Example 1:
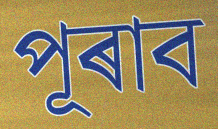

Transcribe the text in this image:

পূৰাব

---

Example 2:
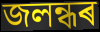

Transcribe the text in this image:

জলন্ধৰ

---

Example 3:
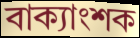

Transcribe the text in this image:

বাক্যাংশক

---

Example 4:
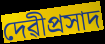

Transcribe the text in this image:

দেৱীপ্ৰসাদ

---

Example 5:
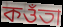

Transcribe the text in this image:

কওঁতা